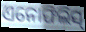
ଏନୋଫିଲିସ୍